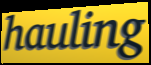
hauling